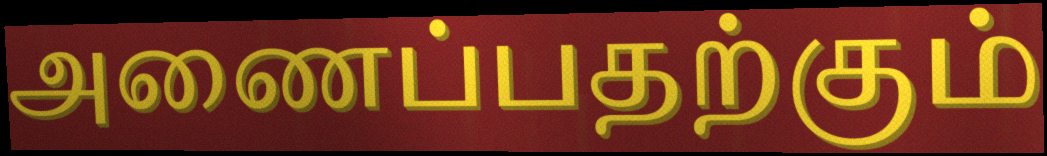
அணைப்பதற்கும்